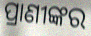
ପ୍ରାଣୀଙ୍କର